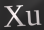
Xu